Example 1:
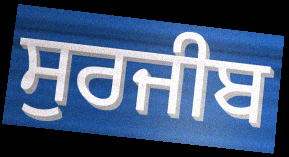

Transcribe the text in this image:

ਸੁਰਜੀਬ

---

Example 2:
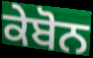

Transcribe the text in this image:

ਕੇਬੋਨ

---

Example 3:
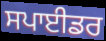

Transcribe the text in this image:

ਸਪਾਈਡਰ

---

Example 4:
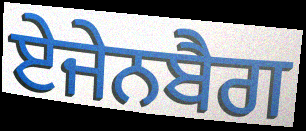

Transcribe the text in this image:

ਏਜੇਨਬੈਗ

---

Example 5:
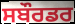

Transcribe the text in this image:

ਸਬੌਰਡਰ